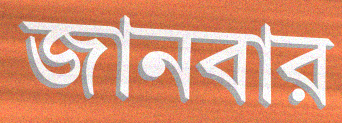
জানবার